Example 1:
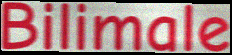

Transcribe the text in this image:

Bilimale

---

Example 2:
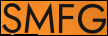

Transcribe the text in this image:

SMFG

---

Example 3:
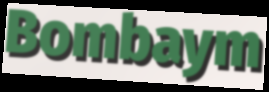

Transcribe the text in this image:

Bombaym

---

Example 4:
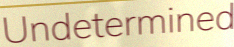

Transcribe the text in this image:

Undetermined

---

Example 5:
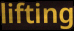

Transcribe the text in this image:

lifting